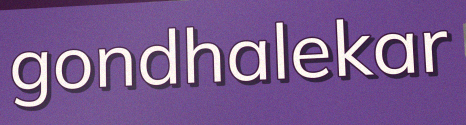
gondhalekar